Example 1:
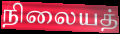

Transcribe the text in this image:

நிலையத்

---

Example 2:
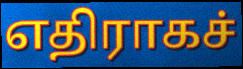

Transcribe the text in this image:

எதிராகச்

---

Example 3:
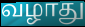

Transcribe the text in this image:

வழாது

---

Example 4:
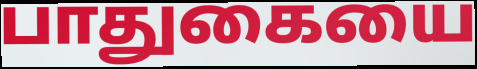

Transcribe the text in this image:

பாதுகையை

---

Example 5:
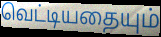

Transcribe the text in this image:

வெட்டியதையும்